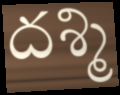
దశ్మి